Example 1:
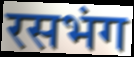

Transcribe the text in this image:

रसभंग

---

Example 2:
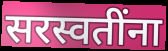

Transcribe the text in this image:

सरस्वतींना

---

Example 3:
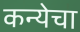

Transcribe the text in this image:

कन्येचा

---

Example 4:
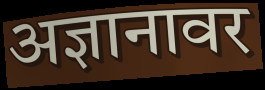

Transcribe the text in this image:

अज्ञानावर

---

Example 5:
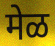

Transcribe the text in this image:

मेळ